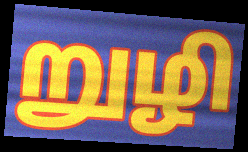
றுழி